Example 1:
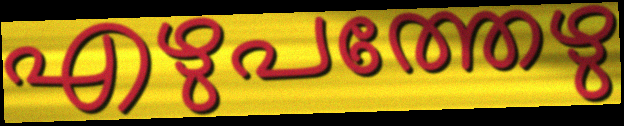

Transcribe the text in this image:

എഴുപത്തേഴു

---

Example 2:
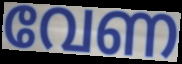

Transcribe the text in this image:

വേണ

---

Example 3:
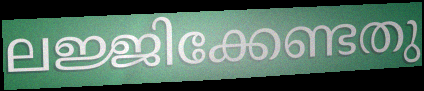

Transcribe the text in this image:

ലജ്ജിക്കേണ്ടതു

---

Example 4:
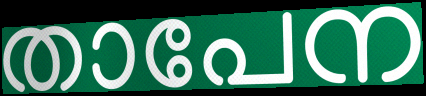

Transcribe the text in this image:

താപേന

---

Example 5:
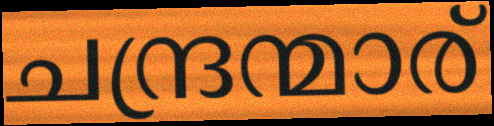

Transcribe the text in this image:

ചന്ദ്രന്മാര്